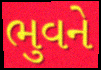
ભુવને